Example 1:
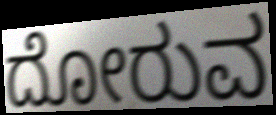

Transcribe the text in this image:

ದೋರುವ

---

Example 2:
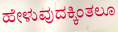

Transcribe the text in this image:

ಹೇಳುವುದಕ್ಕಿಂತಲೂ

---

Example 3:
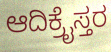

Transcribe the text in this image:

ಆದಿಕ್ರೈಸ್ತರ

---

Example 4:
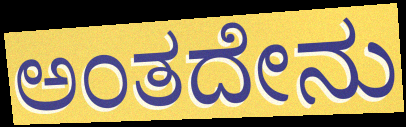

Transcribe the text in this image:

ಅಂತದೇನು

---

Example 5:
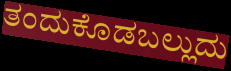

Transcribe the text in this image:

ತಂದುಕೊಡಬಲ್ಲುದು